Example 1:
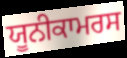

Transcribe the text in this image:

ਯੂਨੀਕਾਮਰਸ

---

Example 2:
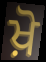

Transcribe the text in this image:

ਖ਼ੋ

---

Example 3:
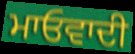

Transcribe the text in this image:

ਮਾਓਵਾਦੀ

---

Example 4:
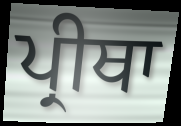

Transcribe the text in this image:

ਪ੍ਰੀਥਾ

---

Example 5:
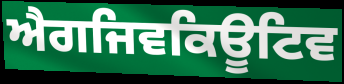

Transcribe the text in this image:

ਐਗਜਿਵਕਿਊਟਿਵ